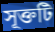
সূক্তটি